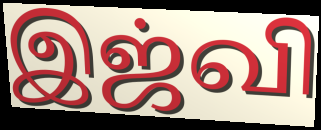
இஜ்வி